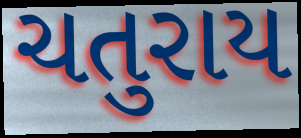
ચતુરાય